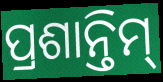
ପ୍ରଶାନ୍ତିମ୍